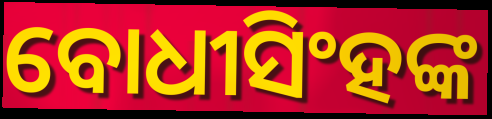
ବୋଧୀସିଂହଙ୍କ